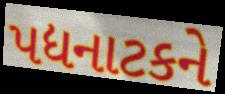
પદ્યનાટકને